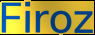
Firoz